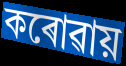
কৰোৱায়